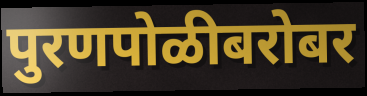
पुरणपोळीबरोबर